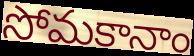
సోమకానాం